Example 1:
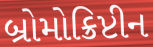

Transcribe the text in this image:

બ્રોમોક્રિપ્ટીન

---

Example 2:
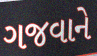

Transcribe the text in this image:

ગજવાને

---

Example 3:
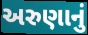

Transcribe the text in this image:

અરુણાનું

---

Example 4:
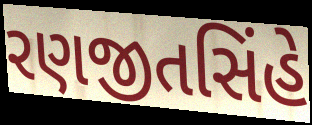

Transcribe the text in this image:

રણજીતસિંહે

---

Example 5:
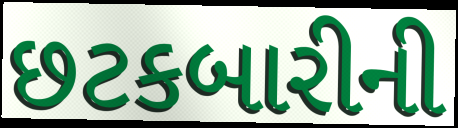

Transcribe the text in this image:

છટકબારીની